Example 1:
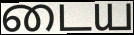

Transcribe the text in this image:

டைய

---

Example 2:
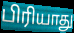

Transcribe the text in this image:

பிரியாது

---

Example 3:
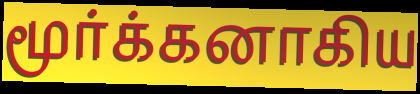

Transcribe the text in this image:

மூர்க்கனாகிய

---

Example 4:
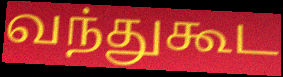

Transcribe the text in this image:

வந்துகூட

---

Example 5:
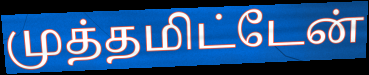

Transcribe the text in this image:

முத்தமிட்டேன்